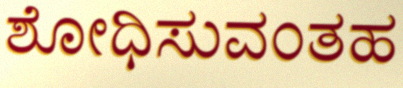
ಶೋಧಿಸುವಂತಹ